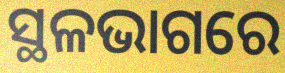
ସ୍ଥଳଭାଗରେ